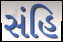
સંહિ